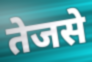
तेजसे